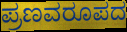
ಪ್ರಣವರೂಪದ